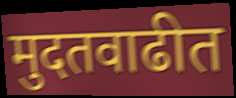
मुदतवाढीत